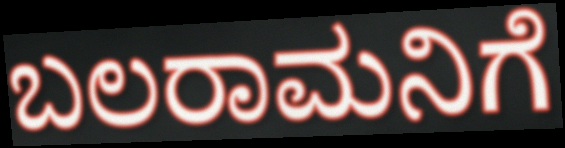
ಬಲರಾಮನಿಗೆ